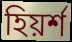
হিয়র্শ